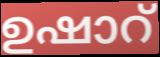
ഉഷാറ്